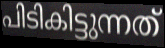
പിടികിട്ടുന്നത്